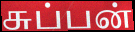
சுப்பன்